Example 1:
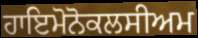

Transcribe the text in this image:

ਹਾਇਮੋਨੋਕਲਸੀਅਮ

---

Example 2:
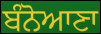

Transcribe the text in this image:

ਬੰਨੋਆਣਾ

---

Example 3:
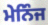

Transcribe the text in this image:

ਮੇਨਿੰਜ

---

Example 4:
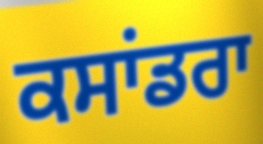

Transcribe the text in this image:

ਕਸਾਂਡਰਾ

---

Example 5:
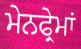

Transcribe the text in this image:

ਮੇਨਫ੍ਰੇਮਾਂ